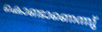
കൊണ്ടാണെന്നു്